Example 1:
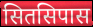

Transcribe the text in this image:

सितसिपास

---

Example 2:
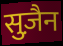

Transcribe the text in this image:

सुज़ैन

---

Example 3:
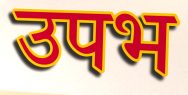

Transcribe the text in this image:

उपभ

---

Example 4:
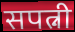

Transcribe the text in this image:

सपत्नी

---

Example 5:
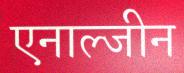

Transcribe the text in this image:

एनाल्जीन